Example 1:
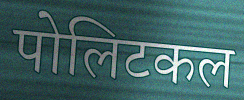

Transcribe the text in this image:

पोलिटकल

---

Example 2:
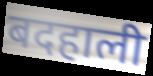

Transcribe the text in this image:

बदहाली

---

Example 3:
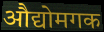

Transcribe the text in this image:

औद्योमगक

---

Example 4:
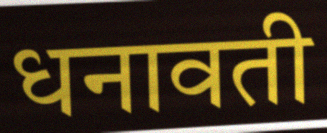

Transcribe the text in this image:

धनावती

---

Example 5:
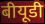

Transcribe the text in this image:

बीयूडी